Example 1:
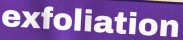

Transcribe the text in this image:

exfoliation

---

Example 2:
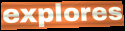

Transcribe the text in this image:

explores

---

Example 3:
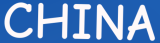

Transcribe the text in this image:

CHINA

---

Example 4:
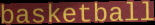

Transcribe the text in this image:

basketball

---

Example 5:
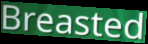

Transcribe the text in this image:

Breasted